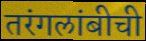
तरंगलांबीची